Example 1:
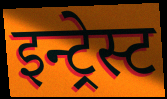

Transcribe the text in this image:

इन्ट्रेस्ट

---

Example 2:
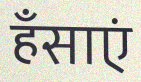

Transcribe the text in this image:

हँसाएं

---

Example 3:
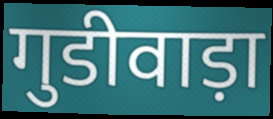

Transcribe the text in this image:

गुडीवाड़ा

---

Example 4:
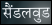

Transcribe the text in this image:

सैंडलवुड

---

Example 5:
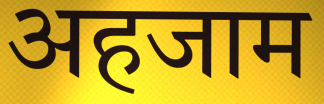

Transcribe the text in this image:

अहजाम